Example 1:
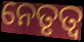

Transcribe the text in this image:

ନେତୃତ୍ଵ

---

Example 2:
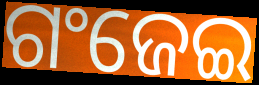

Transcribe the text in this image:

ଗଂଜେଇ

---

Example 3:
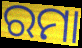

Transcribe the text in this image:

ରମା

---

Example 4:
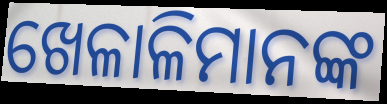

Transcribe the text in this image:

ଖେଳାଳିମାନଙ୍କ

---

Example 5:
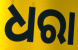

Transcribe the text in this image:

ଧରା